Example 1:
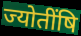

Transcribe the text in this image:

ज्योतींषि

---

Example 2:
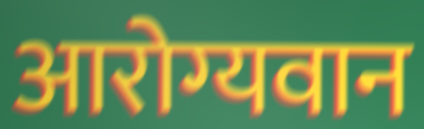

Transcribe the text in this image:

आरोग्यवान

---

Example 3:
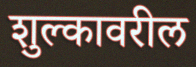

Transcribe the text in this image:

शुल्कावरील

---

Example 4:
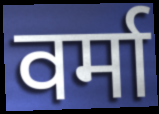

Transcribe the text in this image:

वर्मा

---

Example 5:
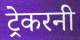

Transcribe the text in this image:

ट्रेकरनी